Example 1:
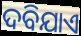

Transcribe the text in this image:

ଦବିଯାଏ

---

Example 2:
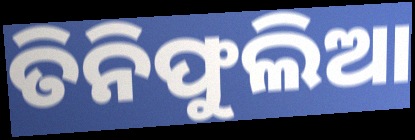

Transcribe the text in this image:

ତିନିଫୁଲିଆ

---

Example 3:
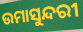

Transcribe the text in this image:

ଉମାସୁନ୍ଦରୀ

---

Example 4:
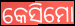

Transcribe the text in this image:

କେସିମୋ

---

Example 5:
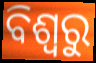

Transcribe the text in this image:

ବିଶ୍ଵରୁ